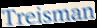
Treisman